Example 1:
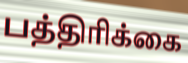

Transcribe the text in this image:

பத்திரிக்கை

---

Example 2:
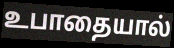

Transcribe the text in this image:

உபாதையால்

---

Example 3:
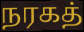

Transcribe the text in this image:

நரகத்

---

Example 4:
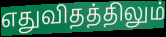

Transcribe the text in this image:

எதுவிதத்திலும்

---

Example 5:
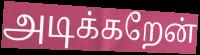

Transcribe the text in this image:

அடிக்கறேன்